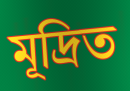
মূদ্রিত